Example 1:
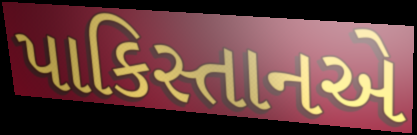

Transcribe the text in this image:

પાકિસ્તાનએ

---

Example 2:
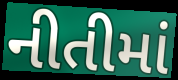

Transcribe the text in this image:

નીતીમાં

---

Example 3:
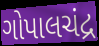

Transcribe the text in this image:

ગોપાલચંદ્ર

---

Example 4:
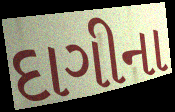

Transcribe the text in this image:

દાગીના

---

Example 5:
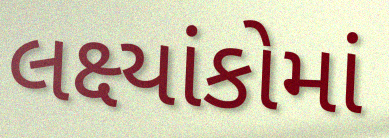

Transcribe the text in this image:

લક્ષ્યાંકોમાં